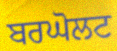
ਬਰਘੋਲਟ